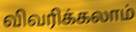
விவரிக்கலாம்